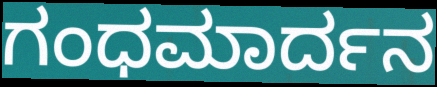
ಗಂಧಮಾರ್ದನ